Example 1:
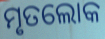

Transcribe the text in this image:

ମୃତଲୋକ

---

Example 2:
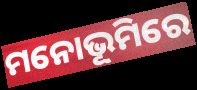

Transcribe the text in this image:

ମନୋଭୂମିରେ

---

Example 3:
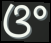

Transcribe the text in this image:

ଓଂ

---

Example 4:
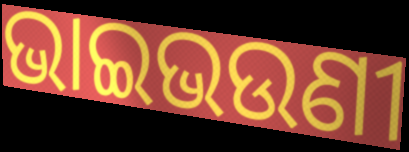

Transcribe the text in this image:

ଭାଇଭଉଣୀ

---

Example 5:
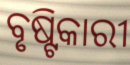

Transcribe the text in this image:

ବୃଷ୍ଟିକାରୀ